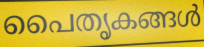
പൈതൃകങ്ങൾ